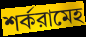
শর্করামেহ